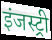
इंजस्ट्री